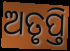
ଅତୃପ୍ତି